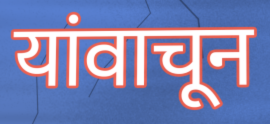
यांवाचून